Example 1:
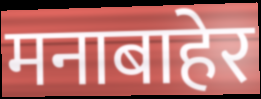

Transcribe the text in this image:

मनाबाहेर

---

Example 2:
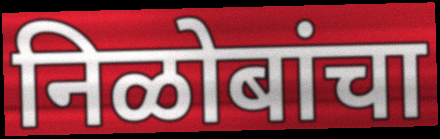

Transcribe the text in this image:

निळोबांचा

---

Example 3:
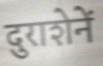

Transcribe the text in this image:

दुराशेनें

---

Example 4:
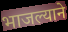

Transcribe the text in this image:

भाजल्याने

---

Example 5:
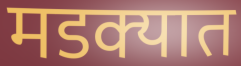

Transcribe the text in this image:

मडक्यात